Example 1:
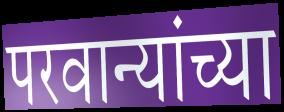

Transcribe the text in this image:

परवान्यांच्या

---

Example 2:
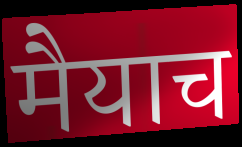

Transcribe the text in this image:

मैयाच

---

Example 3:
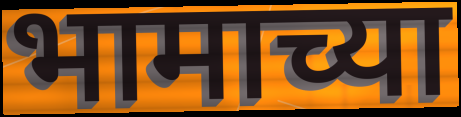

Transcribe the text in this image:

भामाच्या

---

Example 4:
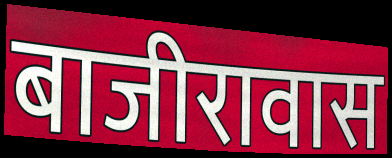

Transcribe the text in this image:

बाजीरावास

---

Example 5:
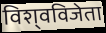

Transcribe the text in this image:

विश्वविजेता